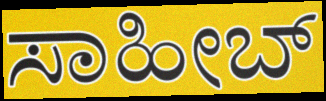
ಸಾಹೀಬ್